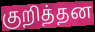
குறித்தன